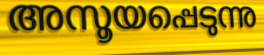
അസൂയപ്പെടുന്നു